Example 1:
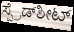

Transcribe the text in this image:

ಸ್ಪ್ರೆಡ್‌ಶೀಟ್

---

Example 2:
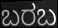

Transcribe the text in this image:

ಬರಬ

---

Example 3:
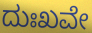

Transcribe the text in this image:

ದುಃಖವೇ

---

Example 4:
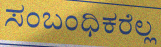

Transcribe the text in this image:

ಸಂಬಂಧಿಕರೆಲ್ಲ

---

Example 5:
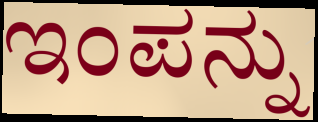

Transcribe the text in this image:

ಇಂಪನ್ನು